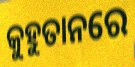
କୁହୁତାନରେ